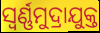
ସ୍ବର୍ଣ୍ଣମୁଦ୍ରାଯୁକ୍ତ